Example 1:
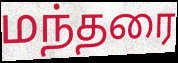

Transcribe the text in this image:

மந்தரை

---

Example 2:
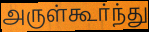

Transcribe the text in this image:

அருள்கூர்ந்து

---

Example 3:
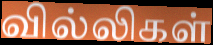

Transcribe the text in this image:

வில்லிகள்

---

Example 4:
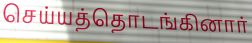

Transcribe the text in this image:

செய்யத்தொடங்கினார்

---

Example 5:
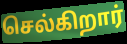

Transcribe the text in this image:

செல்கிறார்